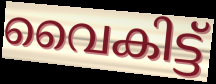
വൈകിട്ട്